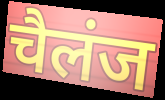
चैलंज